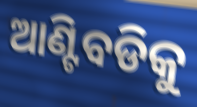
ଆଣ୍ଟିବଡିକୁ